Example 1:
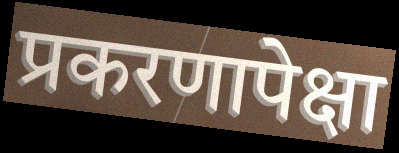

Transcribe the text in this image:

प्रकरणापेक्षा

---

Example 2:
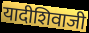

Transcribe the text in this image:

यादीशिवाजी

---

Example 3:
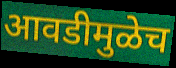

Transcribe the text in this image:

आवडीमुळेच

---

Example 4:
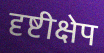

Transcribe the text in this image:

दृष्टीक्षेप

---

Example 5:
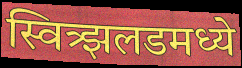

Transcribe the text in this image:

स्वित्र्झलडमध्ये